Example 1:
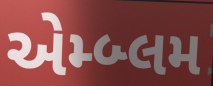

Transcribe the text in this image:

એમ્બ્લમ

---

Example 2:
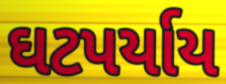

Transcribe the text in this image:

ઘટપર્યાય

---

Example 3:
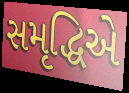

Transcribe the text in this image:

સમૃદ્ધિએ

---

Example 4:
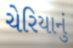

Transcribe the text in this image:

ચેરિયાનું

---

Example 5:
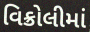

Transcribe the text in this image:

વિક્રોલીમાં